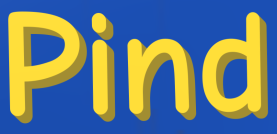
Pind